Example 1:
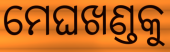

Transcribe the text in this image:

ମେଘଖଣ୍ଡକୁ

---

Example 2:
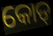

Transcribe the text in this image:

କୋଡ୍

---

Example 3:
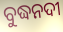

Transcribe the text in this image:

ବୁଦ୍ଧନଦୀ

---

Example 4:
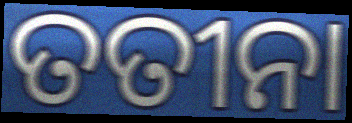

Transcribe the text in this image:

ତତୀନା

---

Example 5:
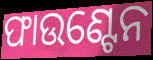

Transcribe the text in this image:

ଫାଉଣ୍ଟେନ